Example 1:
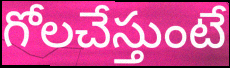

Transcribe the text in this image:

గోలచేస్తుంటే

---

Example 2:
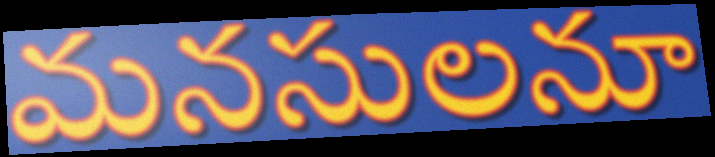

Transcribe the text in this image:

మనసులనూ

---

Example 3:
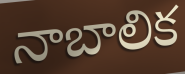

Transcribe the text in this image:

నాబాలిక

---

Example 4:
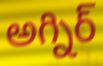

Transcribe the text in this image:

అగ్నిర్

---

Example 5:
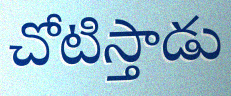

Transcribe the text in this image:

చోటిస్తాడు